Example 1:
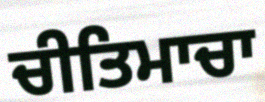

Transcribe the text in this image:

ਚੀਤਿਮਾਚਾ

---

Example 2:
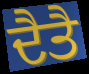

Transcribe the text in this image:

ਦੈਤੈ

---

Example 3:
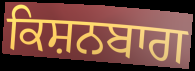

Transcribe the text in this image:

ਕਿਸ਼ਨਬਾਗ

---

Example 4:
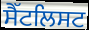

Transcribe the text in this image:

ਸੈੱਟਲਿਸਟ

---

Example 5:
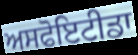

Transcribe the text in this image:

ਅਸਫੋਇਟੀਡਾ